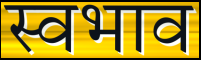
स्वभाव